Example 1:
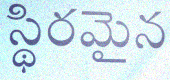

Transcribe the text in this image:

స్థిరమైన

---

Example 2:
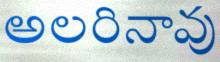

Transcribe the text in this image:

అలరినావు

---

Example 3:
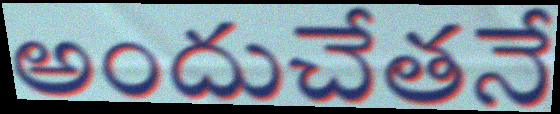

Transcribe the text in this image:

అందుచేతనే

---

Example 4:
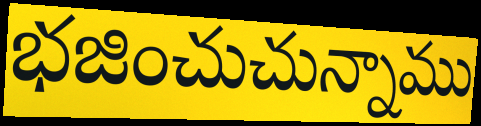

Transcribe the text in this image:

భజించుచున్నాము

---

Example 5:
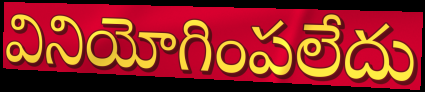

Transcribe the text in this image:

వినియోగింపలేదు